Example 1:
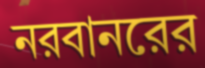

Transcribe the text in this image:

নরবানরের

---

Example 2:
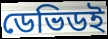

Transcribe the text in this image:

ডেভিডই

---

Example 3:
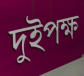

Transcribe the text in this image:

দুইপক্ষ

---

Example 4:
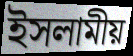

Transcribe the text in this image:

ইসলামীয়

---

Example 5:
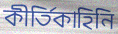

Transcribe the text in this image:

কীর্তিকাহিনি